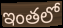
ఇంతలో